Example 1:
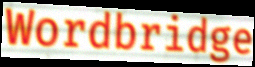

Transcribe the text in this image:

Wordbridge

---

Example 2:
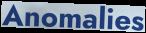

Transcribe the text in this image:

Anomalies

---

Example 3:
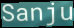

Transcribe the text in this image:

Sanju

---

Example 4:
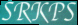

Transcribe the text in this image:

SRKPS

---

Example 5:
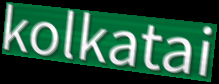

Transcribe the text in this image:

kolkatai